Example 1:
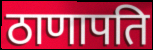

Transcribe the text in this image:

ठाणापति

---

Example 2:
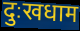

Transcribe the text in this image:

दुःखधाम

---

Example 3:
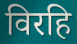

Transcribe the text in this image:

विरहि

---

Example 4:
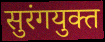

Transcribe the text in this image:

सुरंगयुक्त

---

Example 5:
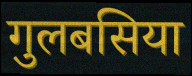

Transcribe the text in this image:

गुलबसिया